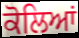
ਕੋਲਿਆਂ